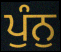
ਪੁੰਨੁ